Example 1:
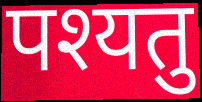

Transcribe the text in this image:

पश्यतु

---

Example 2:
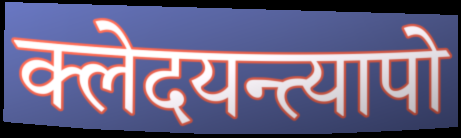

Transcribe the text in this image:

क्लेदयन्त्यापो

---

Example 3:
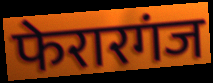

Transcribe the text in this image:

फेरारगंज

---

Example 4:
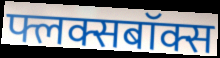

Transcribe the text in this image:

फ्लक्सबॉक्स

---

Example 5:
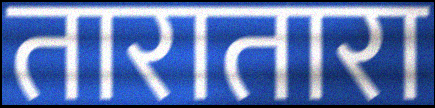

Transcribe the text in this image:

तारातारा